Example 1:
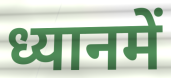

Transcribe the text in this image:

ध्यानमें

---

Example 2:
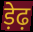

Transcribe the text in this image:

ड़ेढ़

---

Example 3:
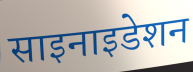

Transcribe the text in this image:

साइनाइडेशन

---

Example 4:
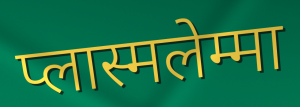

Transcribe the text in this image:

प्लास्मलेम्मा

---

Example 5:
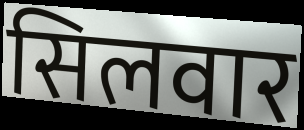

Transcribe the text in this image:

सिलवार